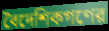
বৈদেশিকগণের